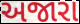
અજારા